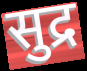
सुद्र